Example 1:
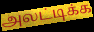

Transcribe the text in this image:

அலட்டிக்க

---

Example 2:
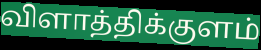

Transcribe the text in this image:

விளாத்திக்குளம்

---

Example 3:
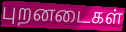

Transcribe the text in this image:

புறனடைகள்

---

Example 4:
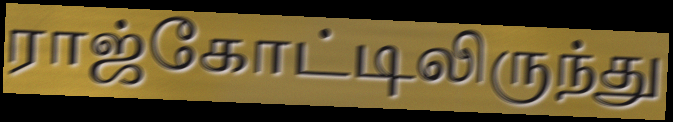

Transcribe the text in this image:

ராஜ்கோட்டிலிருந்து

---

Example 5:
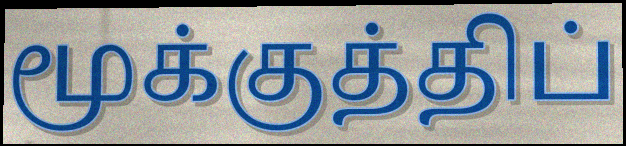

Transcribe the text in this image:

மூக்குத்திப்